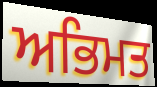
ਅਭਿਮਤ